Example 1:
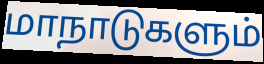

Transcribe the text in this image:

மாநாடுகளும்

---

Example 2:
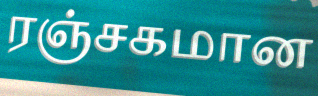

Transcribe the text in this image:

ரஞ்சகமான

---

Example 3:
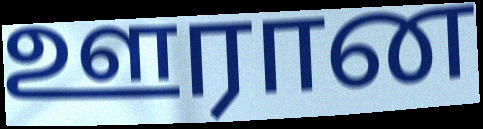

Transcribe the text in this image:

ஊரான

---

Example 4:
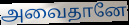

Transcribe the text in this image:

அவைதானே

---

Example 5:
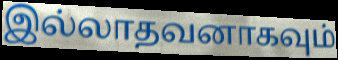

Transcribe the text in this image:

இல்லாதவனாகவும்